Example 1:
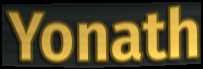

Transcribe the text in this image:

Yonath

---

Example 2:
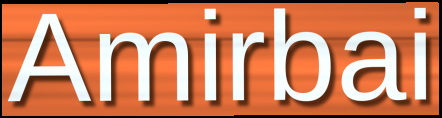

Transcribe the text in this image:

Amirbai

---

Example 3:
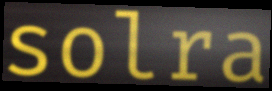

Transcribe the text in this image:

solra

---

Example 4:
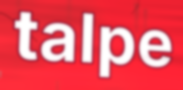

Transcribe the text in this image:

talpe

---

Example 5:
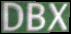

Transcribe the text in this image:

DBX